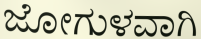
ಜೋಗುಳವಾಗಿ